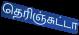
தெரிஞ்சுட்டா